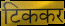
टिककर